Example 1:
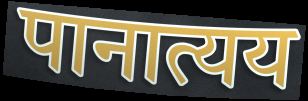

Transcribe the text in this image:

पानात्यय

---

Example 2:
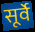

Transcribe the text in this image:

सूर्वे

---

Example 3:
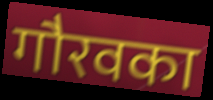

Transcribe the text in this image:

गौरवका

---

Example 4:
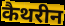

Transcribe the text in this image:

कैथरीन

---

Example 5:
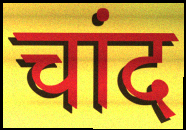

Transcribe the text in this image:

चांद